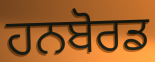
ਹਨਬੋਰਡ